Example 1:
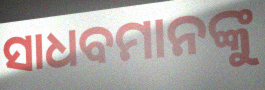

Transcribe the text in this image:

ସାଧବମାନଙ୍କୁ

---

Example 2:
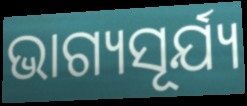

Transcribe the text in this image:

ଭାଗ୍ୟସୂର୍ଯ୍ୟ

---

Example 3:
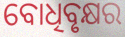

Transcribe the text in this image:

ବୋଧିବୃକ୍ଷର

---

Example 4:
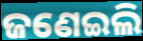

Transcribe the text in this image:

ଜଣେଇଲି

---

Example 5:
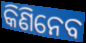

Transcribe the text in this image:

କିଣିନେବ